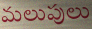
మలుపులు